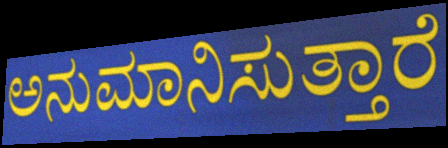
ಅನುಮಾನಿಸುತ್ತಾರೆ